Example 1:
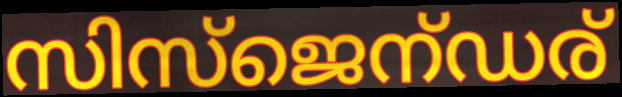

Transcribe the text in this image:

സിസ്ജെന്ഡര്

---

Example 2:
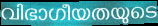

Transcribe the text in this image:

വിഭാഗീയതയുടെ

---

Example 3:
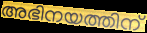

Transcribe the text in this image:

അഭിനയത്തിന്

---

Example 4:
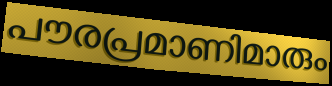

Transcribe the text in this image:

പൗരപ്രമാണിമാരും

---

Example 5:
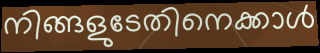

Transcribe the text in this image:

നിങ്ങളുടേതിനെക്കാൾ